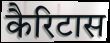
कैरिटास